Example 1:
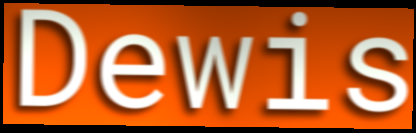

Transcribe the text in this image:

Dewis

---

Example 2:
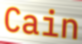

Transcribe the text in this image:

Cain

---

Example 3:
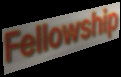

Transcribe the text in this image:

Fellowship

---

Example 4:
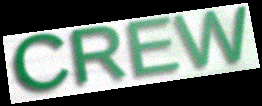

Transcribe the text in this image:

CREW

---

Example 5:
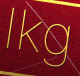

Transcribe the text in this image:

lkg